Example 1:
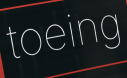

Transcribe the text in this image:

toeing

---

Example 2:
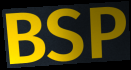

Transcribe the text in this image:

BSP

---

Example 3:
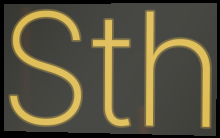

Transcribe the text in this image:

Sth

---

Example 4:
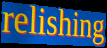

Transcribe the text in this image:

relishing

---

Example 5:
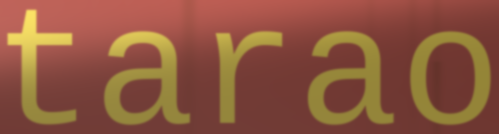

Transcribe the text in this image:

tarao